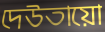
দেউতায়ো